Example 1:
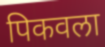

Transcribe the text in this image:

पिकवला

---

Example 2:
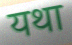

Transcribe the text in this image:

यथा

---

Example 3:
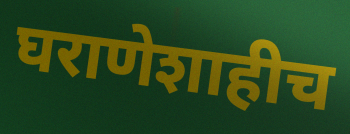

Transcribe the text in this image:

घराणेशाहीच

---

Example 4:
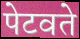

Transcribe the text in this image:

पेटवते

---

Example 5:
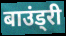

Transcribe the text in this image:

बाउंड्री